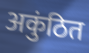
अकुंठित